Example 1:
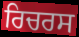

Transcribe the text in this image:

ਰਿਚਰਸ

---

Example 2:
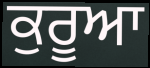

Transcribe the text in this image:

ਕੁਰੂਆ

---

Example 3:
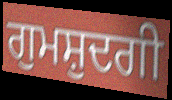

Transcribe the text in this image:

ਗੁਮਸ਼ੁਦਗੀ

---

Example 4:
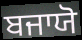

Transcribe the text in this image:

ਬਜਾਯੋ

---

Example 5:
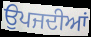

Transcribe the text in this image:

ਉਪਜਦੀਆਂ